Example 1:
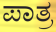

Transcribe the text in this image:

ಪಾತ್ರ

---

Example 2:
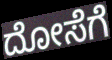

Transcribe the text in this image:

ದೋಸೆಗೆ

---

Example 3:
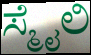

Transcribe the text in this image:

ಸ್ಮೈಲಿ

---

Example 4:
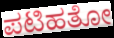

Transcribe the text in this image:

ಪಟಿಹತೋ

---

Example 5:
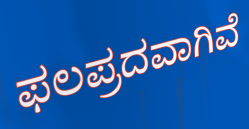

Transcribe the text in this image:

ಫಲಪ್ರದವಾಗಿವೆ